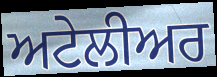
ਅਟੇਲੀਅਰ